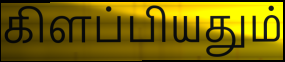
கிளப்பியதும்